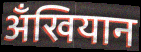
अँखियान